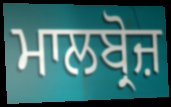
ਮਾਲਬ੍ਰੋਜ਼